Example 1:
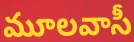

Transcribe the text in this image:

మూలవాసీ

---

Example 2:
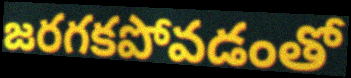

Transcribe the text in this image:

జరగకపోవడంతో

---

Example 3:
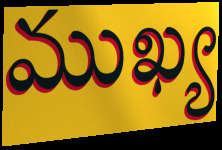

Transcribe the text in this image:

ముఖ్య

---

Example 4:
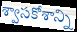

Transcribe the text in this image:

శ్వాసకోశాన్ని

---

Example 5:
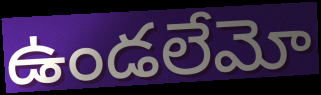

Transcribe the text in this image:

ఉండలేమో